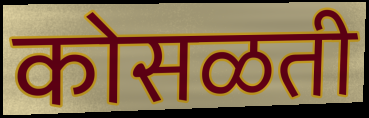
कोसळती